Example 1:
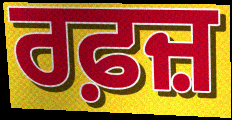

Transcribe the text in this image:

ਰਫ਼ਜ਼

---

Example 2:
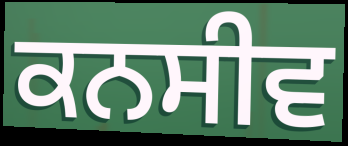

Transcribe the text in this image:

ਕਨਸੀਵ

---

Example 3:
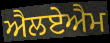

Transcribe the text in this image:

ਐਲਏਐਮ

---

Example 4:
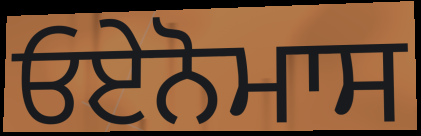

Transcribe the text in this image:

ਓਏਨੋਮਾਸ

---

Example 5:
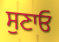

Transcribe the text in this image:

ਸੁਣਾਓ